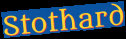
Stothard